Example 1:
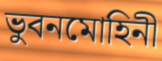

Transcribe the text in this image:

ভুবনমোহিনী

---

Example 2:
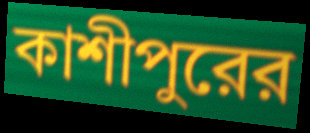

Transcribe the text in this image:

কাশীপুরের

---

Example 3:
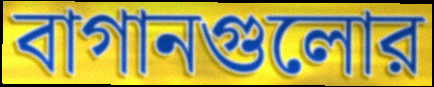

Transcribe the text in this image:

বাগানগুলোর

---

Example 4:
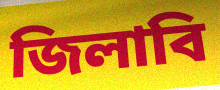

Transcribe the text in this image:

জিলাবি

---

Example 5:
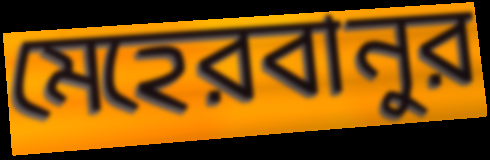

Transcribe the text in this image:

মেহেরবানুর